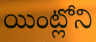
యింట్లోని